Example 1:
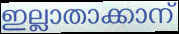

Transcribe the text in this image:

ഇല്ലാതാക്കാന്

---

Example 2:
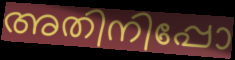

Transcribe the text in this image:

അതിനിപ്പോ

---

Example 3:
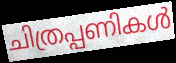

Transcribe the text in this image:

ചിത്രപ്പണികൾ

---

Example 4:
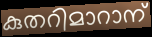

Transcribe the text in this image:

കുതറിമാറാന്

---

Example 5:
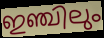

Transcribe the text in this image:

ഇഞ്ചിലും